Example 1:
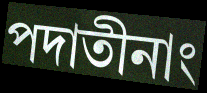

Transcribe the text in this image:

পদাতীনাং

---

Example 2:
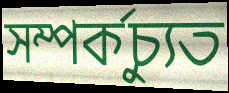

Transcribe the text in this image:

সম্পর্কচ্যুত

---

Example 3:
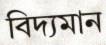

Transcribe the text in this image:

বিদ্যমান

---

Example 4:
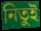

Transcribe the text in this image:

নিতুই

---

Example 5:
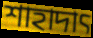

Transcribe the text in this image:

শাহাদাৎ